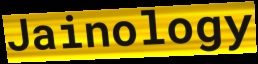
Jainology